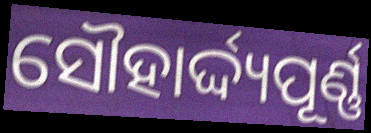
ସୌହାର୍ଦ୍ଦ୍ୟପୂର୍ଣ୍ଣ